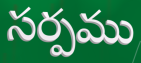
సర్పము